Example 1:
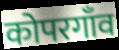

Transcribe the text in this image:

कोपरगाँव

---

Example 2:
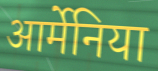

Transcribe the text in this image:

आर्मेनिया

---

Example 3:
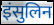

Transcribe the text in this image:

इंसुलिन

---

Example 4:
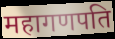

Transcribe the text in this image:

महागणपति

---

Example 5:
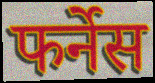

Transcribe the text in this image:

फर्नेस